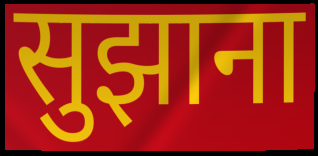
सुझाना